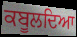
ਕਬੂਲਦਿਆ